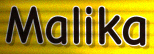
Malika